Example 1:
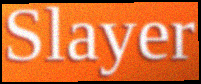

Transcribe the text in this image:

Slayer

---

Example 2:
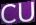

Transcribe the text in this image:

CU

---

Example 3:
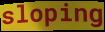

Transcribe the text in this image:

sloping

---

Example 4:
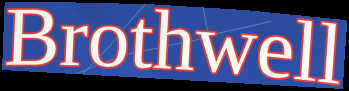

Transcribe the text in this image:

Brothwell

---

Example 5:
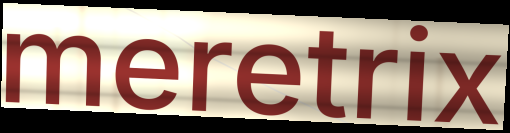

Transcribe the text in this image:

meretrix